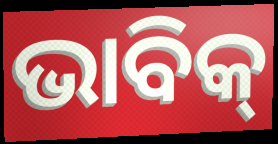
ଭାବିକ୍